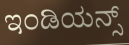
ಇಂಡಿಯನ್ಸ್